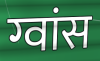
ग्वांस